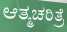
ಆತ್ಮಚರಿತ್ರೆ